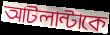
আটলান্টাকে